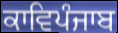
ਕਾਵਿਪੰਜਾਬ